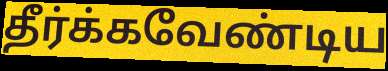
தீர்க்கவேண்டிய